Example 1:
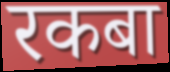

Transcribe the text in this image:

रकबा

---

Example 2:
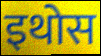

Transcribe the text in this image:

इथोस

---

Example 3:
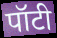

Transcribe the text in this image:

पॉटी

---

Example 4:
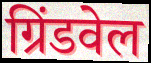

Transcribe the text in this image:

ग्रिंडवेल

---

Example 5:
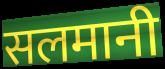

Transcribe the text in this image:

सलमानी